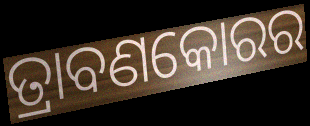
ତ୍ରାବଣକୋରର